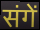
संगें